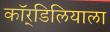
कॉर्डिलियाला